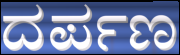
ದರ್ಪಣ